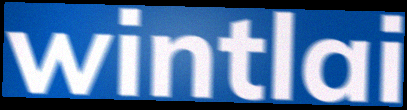
wintlai